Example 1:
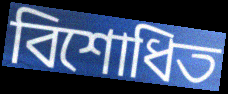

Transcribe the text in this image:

বিশোধিত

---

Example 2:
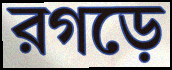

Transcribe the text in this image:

রগড়ে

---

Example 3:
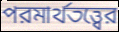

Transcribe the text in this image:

পরমার্থতত্ত্বের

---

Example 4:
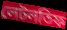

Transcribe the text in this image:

লেটলতিফ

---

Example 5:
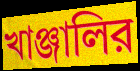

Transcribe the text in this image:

খাঞ্জালির